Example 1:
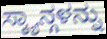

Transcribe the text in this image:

ಸ್ಕ್ಯಾನ್ಗಳನ್ನು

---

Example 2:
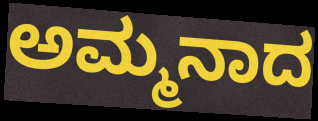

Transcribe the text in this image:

ಅಮ್ಮನಾದ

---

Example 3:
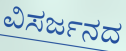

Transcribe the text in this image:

ವಿಸರ್ಜನದ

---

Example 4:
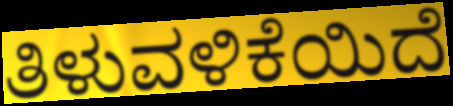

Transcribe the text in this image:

ತಿಳುವಳಿಕೆಯಿದೆ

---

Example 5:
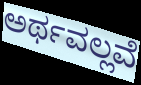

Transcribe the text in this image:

ಅರ್ಥವಲ್ಲವೆ